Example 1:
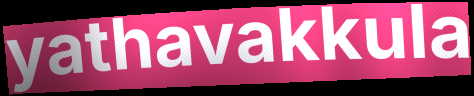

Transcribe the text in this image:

yathavakkula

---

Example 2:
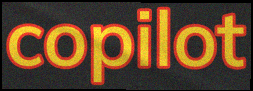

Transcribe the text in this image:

copilot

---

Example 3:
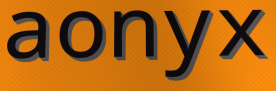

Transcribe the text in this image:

aonyx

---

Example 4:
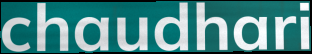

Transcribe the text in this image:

chaudhari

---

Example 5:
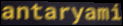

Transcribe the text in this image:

antaryami